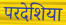
परदेशिया